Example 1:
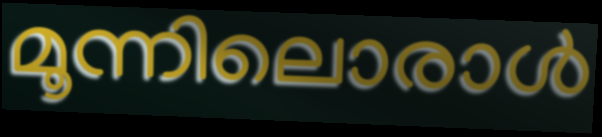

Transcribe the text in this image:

മൂന്നിലൊരാൾ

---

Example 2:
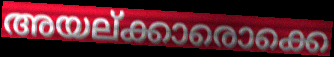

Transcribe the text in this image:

അയല്ക്കാരൊക്കെ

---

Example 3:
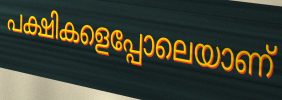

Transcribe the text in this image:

പക്ഷികളെപ്പോലെയാണ്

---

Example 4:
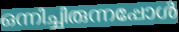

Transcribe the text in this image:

ഒന്നിച്ചിരുന്നപ്പോൾ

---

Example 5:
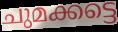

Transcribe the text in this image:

ചുമക്കട്ടെ